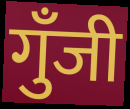
गुँजी